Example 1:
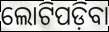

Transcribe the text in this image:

ଲୋଟିପଡ଼ିବା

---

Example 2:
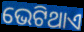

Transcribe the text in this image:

ଭେଟିଥାଏ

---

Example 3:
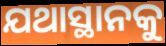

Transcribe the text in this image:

ଯଥାସ୍ଥାନକୁ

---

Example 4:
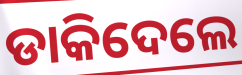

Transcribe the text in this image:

ଡାକିଦେଲେ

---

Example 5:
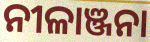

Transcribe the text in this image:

ନୀଳାଞ୍ଜନା